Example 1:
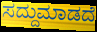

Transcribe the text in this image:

ಸದ್ದುಮಾಡದೆ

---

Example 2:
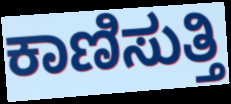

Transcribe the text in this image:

ಕಾಣಿಸುತ್ತಿ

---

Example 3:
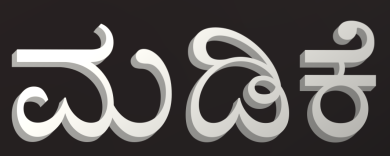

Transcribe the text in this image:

ಮಡಿಕೆ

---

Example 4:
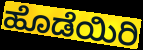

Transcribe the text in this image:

ಹೊಡೆಯಿರಿ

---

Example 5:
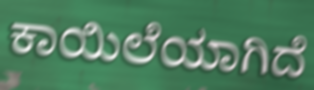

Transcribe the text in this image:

ಕಾಯಿಲೆಯಾಗಿದೆ